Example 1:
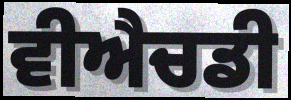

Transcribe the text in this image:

ਵੀਐਚਡੀ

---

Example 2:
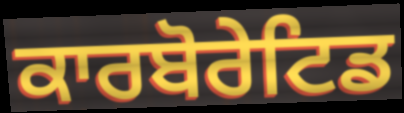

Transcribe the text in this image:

ਕਾਰਬੋਰੇਟਿਡ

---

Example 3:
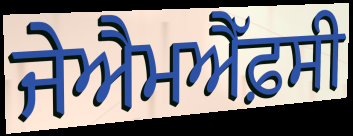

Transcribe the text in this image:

ਜੇਐਮਐੱਫ਼ਸੀ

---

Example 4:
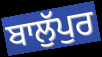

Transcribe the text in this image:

ਬਾਲੁੱਪੁਰ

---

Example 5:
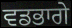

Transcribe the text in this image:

ਵਡਭਾਗੇ